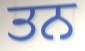
ਤਨ